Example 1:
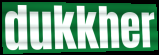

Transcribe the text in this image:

dukkher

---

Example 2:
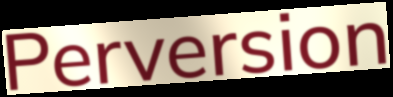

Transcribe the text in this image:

Perversion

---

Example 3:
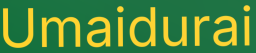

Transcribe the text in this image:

Umaidurai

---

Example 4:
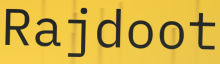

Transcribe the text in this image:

Rajdoot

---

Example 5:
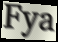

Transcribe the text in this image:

Fya